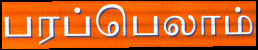
பரப்பெலாம்